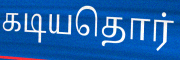
கடியதொர்